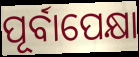
ପୂର୍ବାପେକ୍ଷା